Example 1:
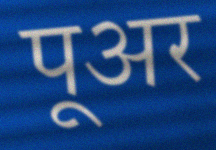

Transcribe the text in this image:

पूअर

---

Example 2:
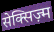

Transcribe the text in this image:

सेक्सिज़्म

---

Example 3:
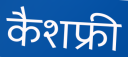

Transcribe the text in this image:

कैशफ्री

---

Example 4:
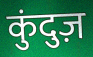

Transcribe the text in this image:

कुंदुज़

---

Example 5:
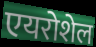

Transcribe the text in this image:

एयरोशेल